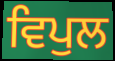
ਵਿਪੁਲ